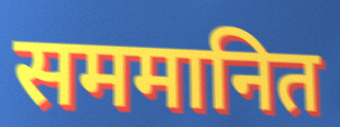
सममानित